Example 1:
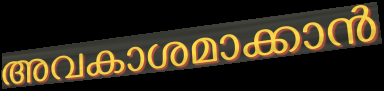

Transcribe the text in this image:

അവകാശമാക്കാൻ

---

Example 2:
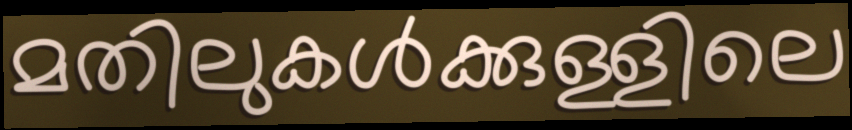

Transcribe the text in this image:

മതിലുകൾക്കുള്ളിലെ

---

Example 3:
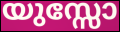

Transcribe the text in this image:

യുസ്സോ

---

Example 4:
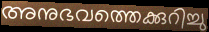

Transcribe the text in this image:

അനുഭവത്തെക്കുറിച്ചു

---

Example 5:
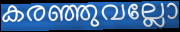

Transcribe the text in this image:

കരഞ്ഞുവല്ലോ